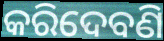
କରିଦେବଣି